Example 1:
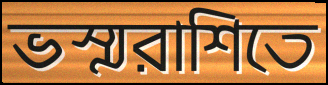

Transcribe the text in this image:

ভস্মরাশিতে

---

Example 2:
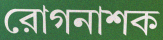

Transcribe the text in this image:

রোগনাশক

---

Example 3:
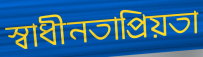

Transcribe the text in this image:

স্বাধীনতাপ্রিয়তা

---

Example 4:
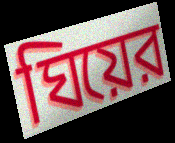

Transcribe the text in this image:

ঘিয়ের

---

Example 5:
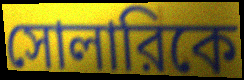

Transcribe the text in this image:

সোলারিকে